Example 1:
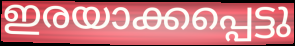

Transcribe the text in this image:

ഇരയാക്കപ്പെട്ടു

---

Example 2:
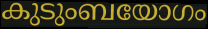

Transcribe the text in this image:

കുടുംബയോഗം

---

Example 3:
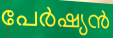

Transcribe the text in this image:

പേർഷ്യൻ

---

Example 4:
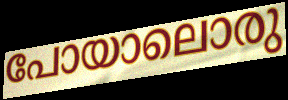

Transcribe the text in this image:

പോയാലൊരു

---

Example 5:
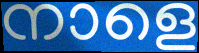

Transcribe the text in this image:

നാളെ